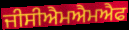
ਜੀਸੀਐਮਐਮਐਫ